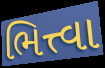
ભિત્ત્વા